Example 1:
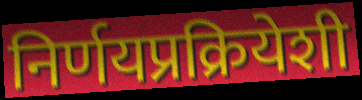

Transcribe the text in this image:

निर्णयप्रक्रियेशी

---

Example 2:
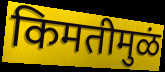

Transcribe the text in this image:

किमतीमुळं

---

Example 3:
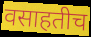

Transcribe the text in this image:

वसाहतीच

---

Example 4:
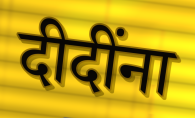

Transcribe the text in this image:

दीदींना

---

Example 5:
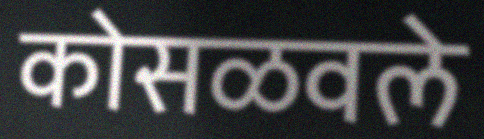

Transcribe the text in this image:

कोसळवले